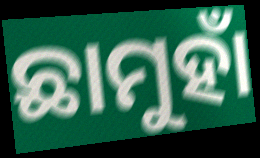
ଛାମୁହାଁ